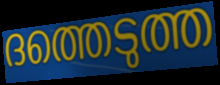
ദത്തെടുത്ത